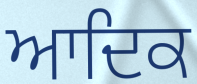
ਆਦਿਕ